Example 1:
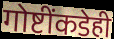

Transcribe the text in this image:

गोष्टींकडेही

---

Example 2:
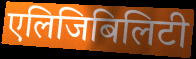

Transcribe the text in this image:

एलिजिबिलिटी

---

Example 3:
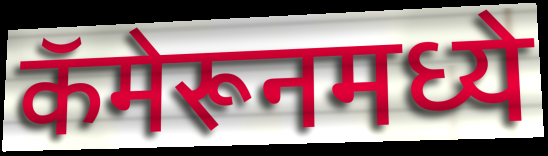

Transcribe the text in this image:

कॅमेरूनमध्ये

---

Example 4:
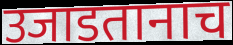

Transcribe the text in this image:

उजाडतानाच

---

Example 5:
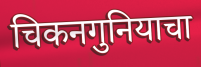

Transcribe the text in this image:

चिकनगुनियाचा